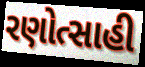
રણોત્સાહી